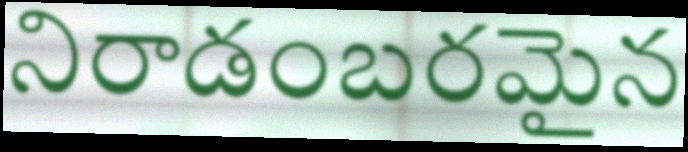
నిరాడంబరమైన